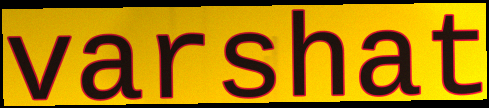
varshat